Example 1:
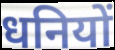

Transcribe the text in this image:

धनियों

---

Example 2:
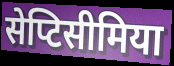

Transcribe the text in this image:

सेप्टिसीमिया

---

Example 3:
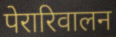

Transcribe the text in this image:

पेरारिवालन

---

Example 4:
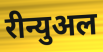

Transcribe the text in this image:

रीन्युअल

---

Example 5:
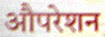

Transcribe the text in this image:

औपरेशन